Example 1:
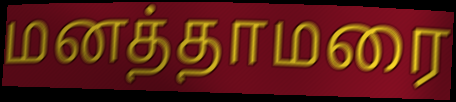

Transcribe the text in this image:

மனத்தாமரை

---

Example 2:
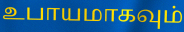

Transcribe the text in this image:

உபாயமாகவும்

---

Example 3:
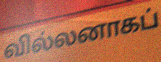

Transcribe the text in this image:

வில்லனாகப்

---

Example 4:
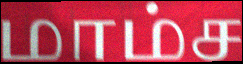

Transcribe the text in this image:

மாம்ச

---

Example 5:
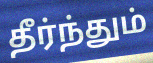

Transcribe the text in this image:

தீர்ந்தும்